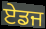
ਏਡਜ